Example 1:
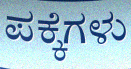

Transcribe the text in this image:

ಪಕ್ಕೆಗಳು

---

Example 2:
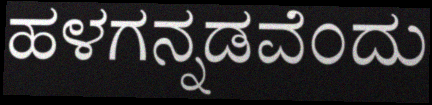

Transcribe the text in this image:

ಹಳಗನ್ನಡವೆಂದು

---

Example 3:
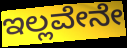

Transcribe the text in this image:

ಇಲ್ಲವೇನೇ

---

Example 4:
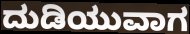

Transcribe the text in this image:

ದುಡಿಯುವಾಗ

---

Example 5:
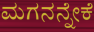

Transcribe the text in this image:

ಮಗನನ್ನೇಕೆ